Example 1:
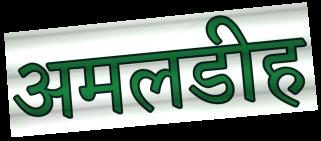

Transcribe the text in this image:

अमलडीह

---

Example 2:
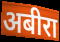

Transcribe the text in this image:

अबीरा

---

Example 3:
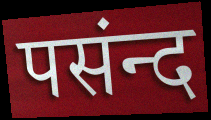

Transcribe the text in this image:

पसंन्द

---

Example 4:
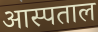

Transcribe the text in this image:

आस्पताल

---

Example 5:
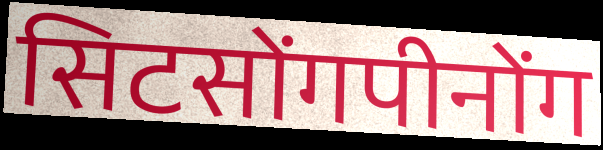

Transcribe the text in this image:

सिटसोंगपीनोंग